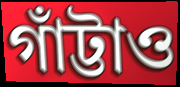
গাঁট্টাও